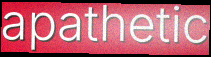
apathetic